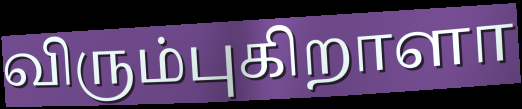
விரும்புகிறாளா